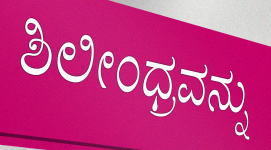
ಶಿಲೀಂಧ್ರವನ್ನು